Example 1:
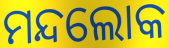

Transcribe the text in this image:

ମନ୍ଦଲୋକ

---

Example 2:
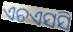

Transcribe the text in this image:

ଏଚଏସସି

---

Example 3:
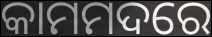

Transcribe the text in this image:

କାମମଦରେ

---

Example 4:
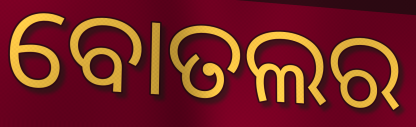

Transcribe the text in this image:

ବୋତଲର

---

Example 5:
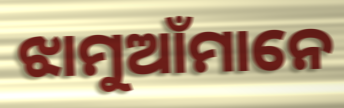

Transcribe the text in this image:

ଝାମୁଆଁମାନେ